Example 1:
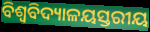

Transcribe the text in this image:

ବିଶ୍ଵବିଦ୍ୟାଳୟସ୍ତରୀୟ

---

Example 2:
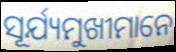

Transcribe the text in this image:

ସୂର୍ଯ୍ୟମୁଖୀମାନେ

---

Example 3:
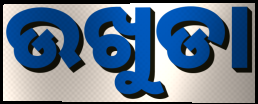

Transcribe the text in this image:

ଉଖୁଡା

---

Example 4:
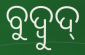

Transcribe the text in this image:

ବୁଦ୍ବୁଦ୍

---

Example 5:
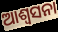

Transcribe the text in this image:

ଆଶ୍ୱସନା